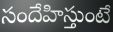
సందేహిస్తుంటే